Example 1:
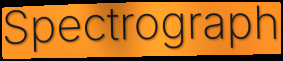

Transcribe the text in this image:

Spectrograph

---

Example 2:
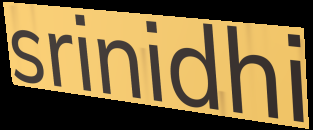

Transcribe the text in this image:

srinidhi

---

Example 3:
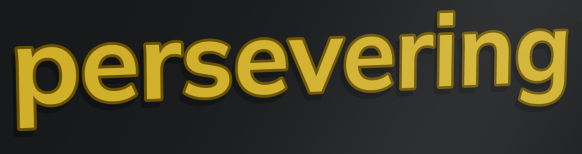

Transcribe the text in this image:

persevering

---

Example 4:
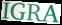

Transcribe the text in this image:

IGRA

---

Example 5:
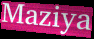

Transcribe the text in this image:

Maziya